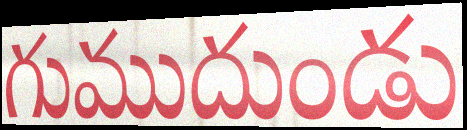
గుముదుండు